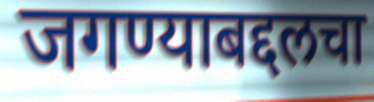
जगण्याबद्दलचा